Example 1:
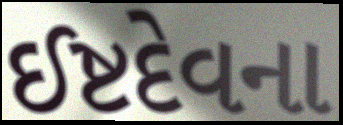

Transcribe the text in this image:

ઈષ્ટદેવના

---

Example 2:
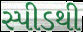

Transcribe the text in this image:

સ્પીડથી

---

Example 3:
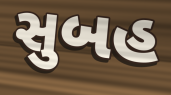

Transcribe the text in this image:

સુબહ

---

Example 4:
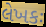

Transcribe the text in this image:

લેખકઃ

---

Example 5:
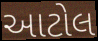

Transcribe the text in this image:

આટોલ